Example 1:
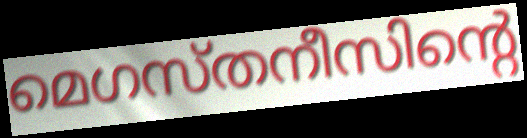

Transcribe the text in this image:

മെഗസ്തനീസിന്റെ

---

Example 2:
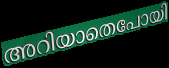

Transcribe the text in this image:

അറിയാതെപോയി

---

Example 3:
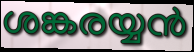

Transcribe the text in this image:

ശങ്കരയ്യൻ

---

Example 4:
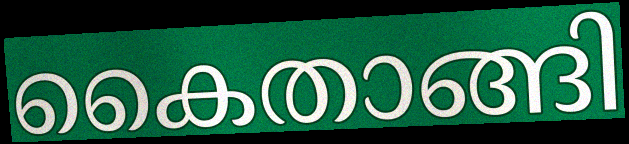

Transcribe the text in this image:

കൈതാങ്ങി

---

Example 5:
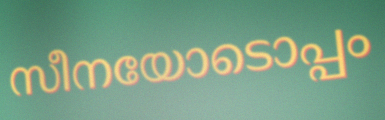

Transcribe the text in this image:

സീനയോടൊപ്പം